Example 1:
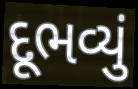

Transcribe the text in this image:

દૂભવ્યું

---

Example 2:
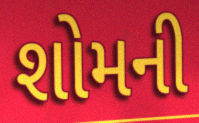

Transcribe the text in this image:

શોમની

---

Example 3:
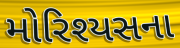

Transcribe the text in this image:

મોરિશ્યસના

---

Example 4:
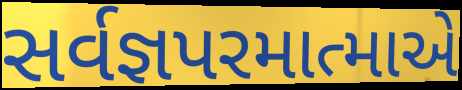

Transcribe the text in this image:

સર્વજ્ઞપરમાત્માએ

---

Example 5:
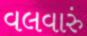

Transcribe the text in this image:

વલવારું